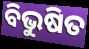
ବିଭୁଷିତ